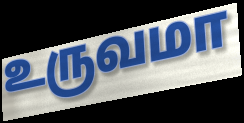
உருவமா